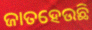
ଜାତହେଉଛି